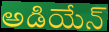
అడియేన్